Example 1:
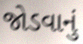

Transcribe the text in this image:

જોડવાનું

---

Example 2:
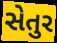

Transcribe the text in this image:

સેતુર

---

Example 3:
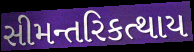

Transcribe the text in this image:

સીમન્તરિકત્થાય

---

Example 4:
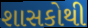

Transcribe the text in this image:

શાસકોથી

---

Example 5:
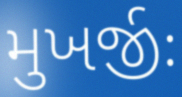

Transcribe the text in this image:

મુખર્જીઃ